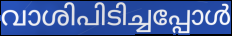
വാശിപിടിച്ചപ്പോൾ